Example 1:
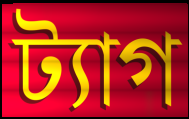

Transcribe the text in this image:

ট্যাগ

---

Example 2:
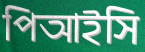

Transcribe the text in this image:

পিআইসি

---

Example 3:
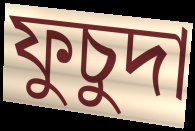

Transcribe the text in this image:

ফুচুদা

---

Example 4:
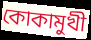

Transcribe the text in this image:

কোকামুখী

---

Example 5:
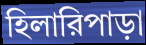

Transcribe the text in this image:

হিলারিপাড়া